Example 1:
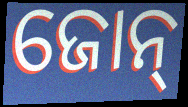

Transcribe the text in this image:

ଜୋନ୍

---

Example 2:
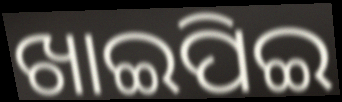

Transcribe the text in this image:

ଖାଇପିଇ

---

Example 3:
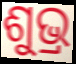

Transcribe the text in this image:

ଶୁଭ୍ର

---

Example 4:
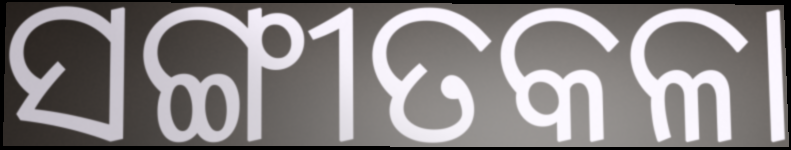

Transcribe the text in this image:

ସଙ୍ଗୀତକଳା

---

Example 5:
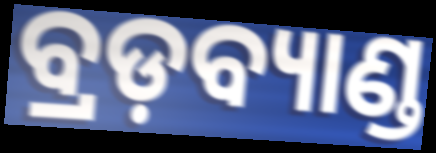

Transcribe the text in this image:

ବ୍ରଡ଼ବ୍ୟାଣ୍ଡ